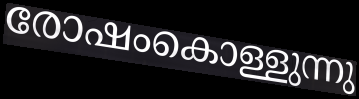
രോഷംകൊള്ളുന്നു